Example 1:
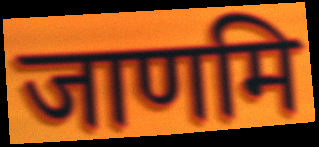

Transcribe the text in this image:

जाणमि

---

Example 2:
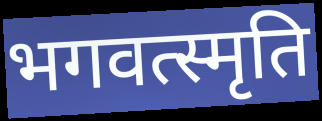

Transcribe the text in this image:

भगवत्स्मृति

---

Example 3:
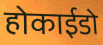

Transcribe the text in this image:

होकाईडो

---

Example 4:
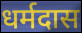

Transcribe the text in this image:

धर्मदास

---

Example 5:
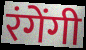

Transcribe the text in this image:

रंगेंगी